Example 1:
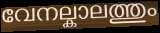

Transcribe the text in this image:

വേനല്കാലത്തും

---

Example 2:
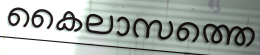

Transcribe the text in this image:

കൈലാസത്തെ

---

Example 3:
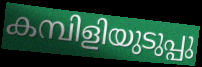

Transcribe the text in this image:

കമ്പിളിയുടുപ്പു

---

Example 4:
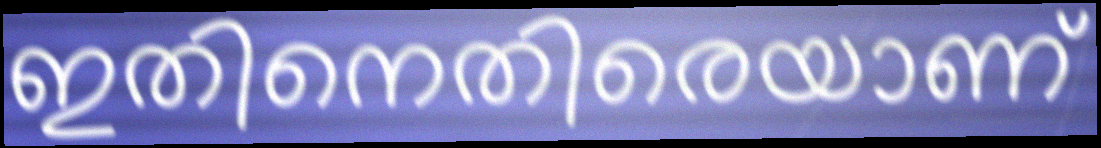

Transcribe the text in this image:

ഇതിനെതിരെയാണ്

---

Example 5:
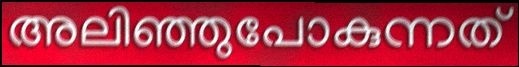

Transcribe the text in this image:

അലിഞ്ഞുപോകുന്നത്